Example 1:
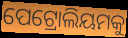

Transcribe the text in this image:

ପେଟ୍ରୋଲିୟମକୁ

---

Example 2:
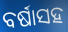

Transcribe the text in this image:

ବର୍ଷାସହ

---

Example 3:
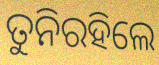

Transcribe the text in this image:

ତୁନିରହିଲେ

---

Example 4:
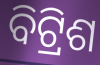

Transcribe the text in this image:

ବିଟ୍ରିଶ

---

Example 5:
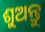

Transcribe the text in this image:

ଶୁଅନ୍ତୁ